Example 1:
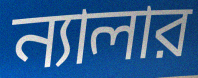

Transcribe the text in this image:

ন্যালার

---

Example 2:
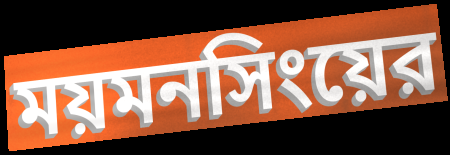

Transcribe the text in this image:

ময়মনসিংয়ের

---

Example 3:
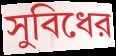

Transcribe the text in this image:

সুবিধের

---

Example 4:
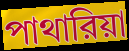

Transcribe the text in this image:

পাথারিয়া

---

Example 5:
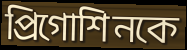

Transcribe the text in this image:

প্রিগোশিনকে